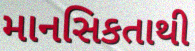
માનસિકતાથી